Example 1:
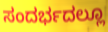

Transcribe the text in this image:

ಸಂದರ್ಭದಲ್ಲೂ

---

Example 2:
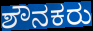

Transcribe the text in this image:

ಶೌನಕರು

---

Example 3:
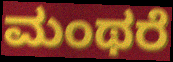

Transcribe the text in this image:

ಮಂಥರೆ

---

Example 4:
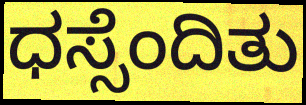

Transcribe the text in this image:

ಧಸ್ಸೆಂದಿತು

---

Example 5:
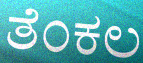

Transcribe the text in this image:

ತೆಂಕಲ